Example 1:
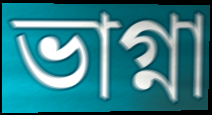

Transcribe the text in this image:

ভাগ্না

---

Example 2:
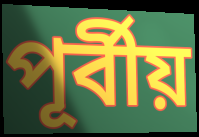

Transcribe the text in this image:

পূর্বীয়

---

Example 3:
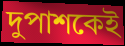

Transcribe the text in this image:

দুপাশকেই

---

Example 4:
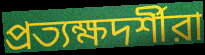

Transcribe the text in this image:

প্রত্যক্ষদর্শীরা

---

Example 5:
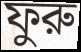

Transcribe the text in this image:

ফুরু